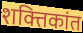
शक्तिकांत